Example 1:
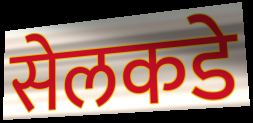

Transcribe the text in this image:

सेलकडे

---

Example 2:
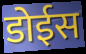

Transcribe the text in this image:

डोईस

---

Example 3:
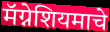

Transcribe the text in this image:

मॅग्नेशियमाचे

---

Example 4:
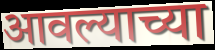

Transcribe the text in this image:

आवल्याच्या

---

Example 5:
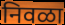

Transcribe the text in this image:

निवळा